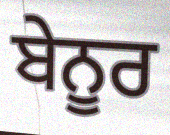
ਬੇਨੂਰ